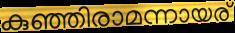
കുഞ്ഞിരാമന്നായര്